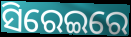
ସିରେଇରେ